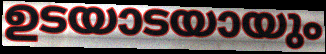
ഉടയാടയായും